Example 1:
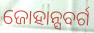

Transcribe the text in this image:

ଜୋହାନ୍ସବର୍ଗ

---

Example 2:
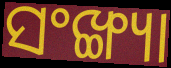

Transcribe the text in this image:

ସଂଙ୍ଖ୍ଯା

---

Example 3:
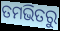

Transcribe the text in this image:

ତମଭିତରୁ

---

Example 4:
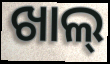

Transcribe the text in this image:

ଖାଲ୍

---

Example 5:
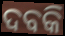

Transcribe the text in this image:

ଦବକି